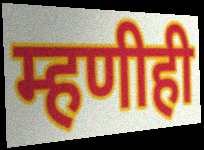
म्हणीही